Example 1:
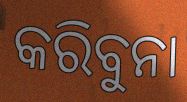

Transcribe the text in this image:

କରିବୁନା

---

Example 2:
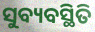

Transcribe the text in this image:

ସୁବ୍ୟବସ୍ଥିତି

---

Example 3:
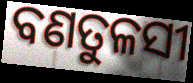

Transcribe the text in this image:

ବଣତୁଳସୀ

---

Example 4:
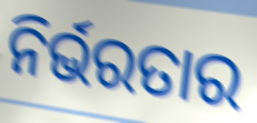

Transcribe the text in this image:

ନିର୍ଭରତାର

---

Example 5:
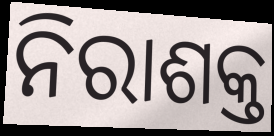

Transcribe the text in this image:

ନିରାଶକ୍ତ